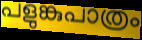
പളുങ്കുപാത്രം